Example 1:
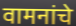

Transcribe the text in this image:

वामनांचे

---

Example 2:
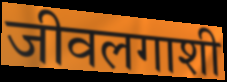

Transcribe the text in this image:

जीवलगाशी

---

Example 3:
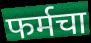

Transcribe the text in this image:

फर्मचा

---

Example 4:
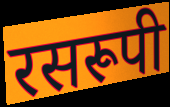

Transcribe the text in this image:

रसरूपी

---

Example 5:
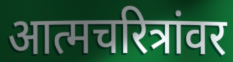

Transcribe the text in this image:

आत्मचरित्रांवर